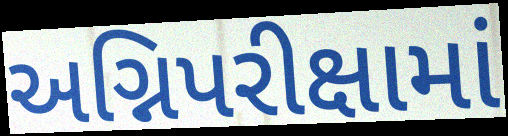
અગ્નિપરીક્ષામાં